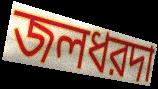
জলধরদা